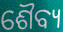
ଶୈବ୍ୟ